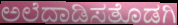
ಅಲೆದಾಡಿಸತೊಡಗಿ